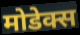
मोडेक्स